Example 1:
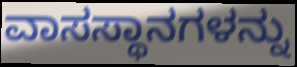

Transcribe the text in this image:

ವಾಸಸ್ಥಾನಗಳನ್ನು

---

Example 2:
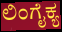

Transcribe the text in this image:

ಲಿಂಗೈಕ್ಯ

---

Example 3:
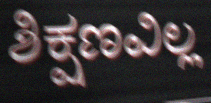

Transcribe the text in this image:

ಶಿಕ್ಷಣವಿಲ್ಲ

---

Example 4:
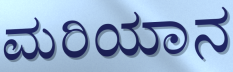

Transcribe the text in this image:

ಮರಿಯಾನ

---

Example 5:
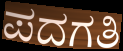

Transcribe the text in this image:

ಪದಗತಿ